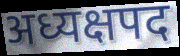
अध्यक्षपद